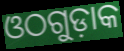
ଓଠଗୁଡ଼ାକ